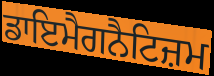
ਡਾਇਮੈਗਨੈਟਿਜ਼ਮ